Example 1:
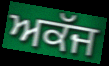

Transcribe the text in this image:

ਅਕੱਜ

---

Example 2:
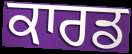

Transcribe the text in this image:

ਕਾਰਡ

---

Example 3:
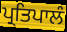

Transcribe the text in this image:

ਪ੍ਰਤਿਪਾਲੰ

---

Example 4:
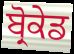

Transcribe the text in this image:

ਬ੍ਰੋਕੇਡ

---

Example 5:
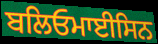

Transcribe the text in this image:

ਬਲਿਓਮਾਈਸਿਨ